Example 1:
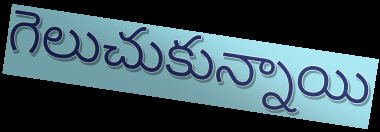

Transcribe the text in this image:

గెలుచుకున్నాయి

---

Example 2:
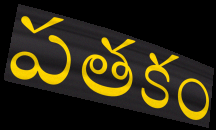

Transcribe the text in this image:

పతకం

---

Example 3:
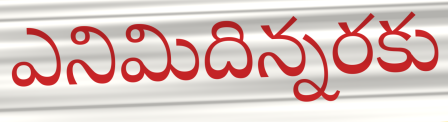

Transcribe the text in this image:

ఎనిమిదిన్నరకు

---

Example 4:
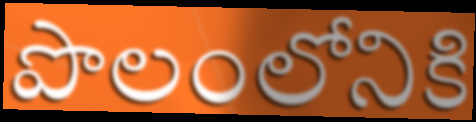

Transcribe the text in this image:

పొలంలోనికి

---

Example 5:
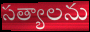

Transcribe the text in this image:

సత్యాలను